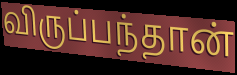
விருப்பந்தான்